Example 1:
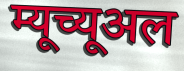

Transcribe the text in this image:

म्यूच्यूअल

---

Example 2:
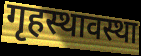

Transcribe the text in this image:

गृहस्थावस्था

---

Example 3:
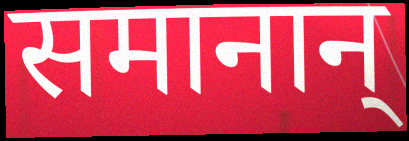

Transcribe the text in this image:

समानान्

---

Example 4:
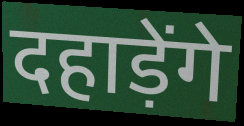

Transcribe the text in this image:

दहाड़ेंगे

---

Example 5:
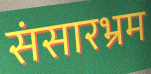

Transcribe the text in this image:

संसारभ्रम